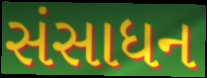
સંસાધન